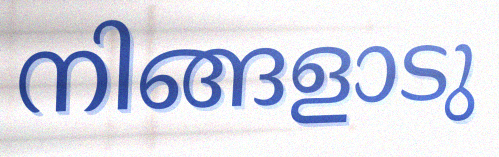
നിങ്ങളാടു